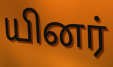
யினர்